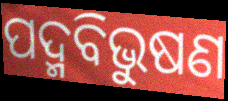
ପଦ୍ମବିଭୁଷଣ